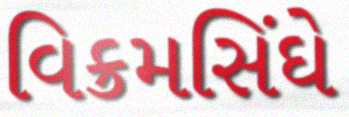
વિક્રમસિંઘે